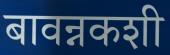
बावन्नकशी